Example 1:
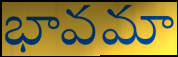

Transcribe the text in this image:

భావమా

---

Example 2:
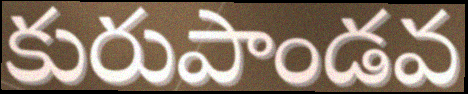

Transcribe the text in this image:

కురుపాండవ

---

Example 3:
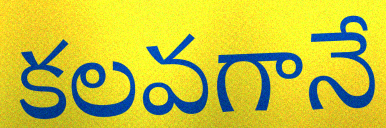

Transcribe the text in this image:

కలవగానే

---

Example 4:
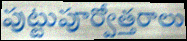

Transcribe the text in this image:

పుట్టుపూర్వోత్తరాలు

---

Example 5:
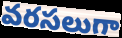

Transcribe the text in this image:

వరసలుగా